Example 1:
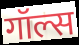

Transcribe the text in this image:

गॉल्स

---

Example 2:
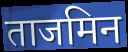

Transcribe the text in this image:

ताजमिन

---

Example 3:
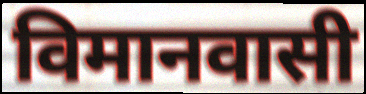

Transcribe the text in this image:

विमानवासी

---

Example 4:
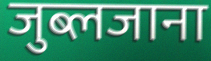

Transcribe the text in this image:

जुब्लजाना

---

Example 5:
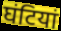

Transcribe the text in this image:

घंटियां